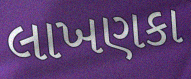
લાખણકા